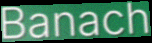
Banach